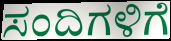
ಸಂದಿಗಳಿಗೆ